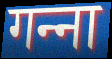
गन्‍ना